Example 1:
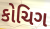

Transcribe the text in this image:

કોચિગ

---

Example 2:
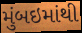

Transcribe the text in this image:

મુંબઇમાંથી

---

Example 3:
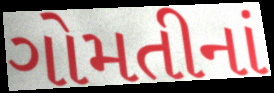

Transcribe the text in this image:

ગોમતીનાં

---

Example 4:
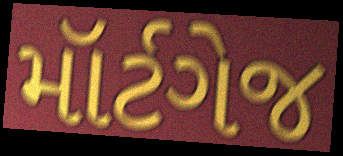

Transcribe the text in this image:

મૉર્ટગેજ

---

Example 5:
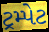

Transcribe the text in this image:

ટ્રમ્પેટ